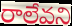
రాలేవని